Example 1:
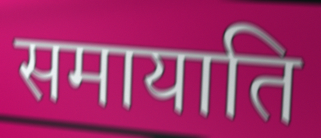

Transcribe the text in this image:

समायाति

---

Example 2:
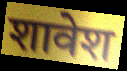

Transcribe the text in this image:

शावेश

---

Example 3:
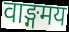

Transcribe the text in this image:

वाङ्गमय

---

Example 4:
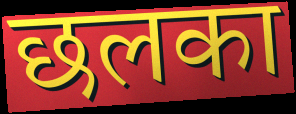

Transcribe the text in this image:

छलका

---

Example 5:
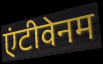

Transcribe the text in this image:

एंटीवेनम